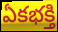
ఏకభక్తి